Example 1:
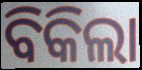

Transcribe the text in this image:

ବିକିଲା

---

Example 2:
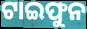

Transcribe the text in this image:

ଟାଇଫୁନ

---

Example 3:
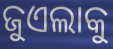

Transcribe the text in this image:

ଜୁଏଲାକୁ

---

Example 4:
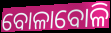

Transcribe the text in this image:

ବୋଳାବୋଳି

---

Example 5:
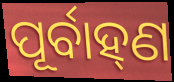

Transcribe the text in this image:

ପୂର୍ବାହ୍‌ଣ